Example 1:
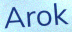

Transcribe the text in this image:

Arok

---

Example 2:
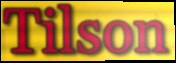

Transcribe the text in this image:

Tilson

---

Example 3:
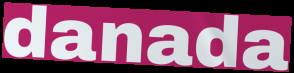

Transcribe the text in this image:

danada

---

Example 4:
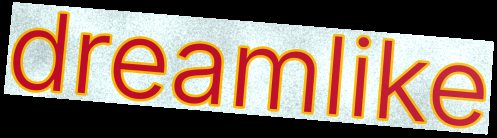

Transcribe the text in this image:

dreamlike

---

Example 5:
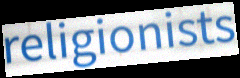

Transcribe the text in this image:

religionists